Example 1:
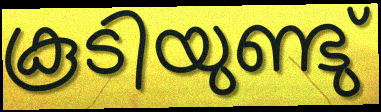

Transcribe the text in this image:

കൂടിയുണ്ടു്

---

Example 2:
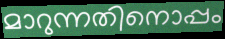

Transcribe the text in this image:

മാറുന്നതിനൊപ്പം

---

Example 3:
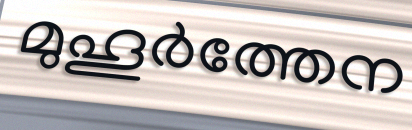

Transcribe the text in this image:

മുഹൂർത്തേന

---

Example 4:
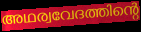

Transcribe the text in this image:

അഥര്വവേദത്തിന്റെ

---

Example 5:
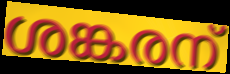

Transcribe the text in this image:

ശങ്കരന്